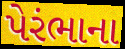
પેરંભાના